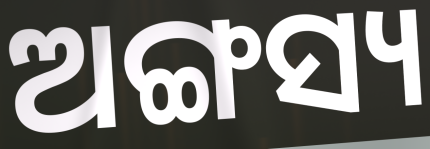
ଅଙ୍ଗସ୍ୟ